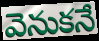
వెనుకనే